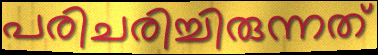
പരിചരിച്ചിരുന്നത്